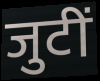
जुटीं